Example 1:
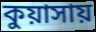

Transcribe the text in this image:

কুয়াসায়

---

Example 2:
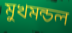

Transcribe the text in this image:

মুখমন্ডল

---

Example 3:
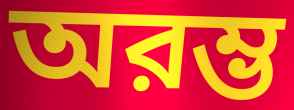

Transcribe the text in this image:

অরম্ভ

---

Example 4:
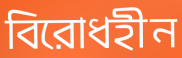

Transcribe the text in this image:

বিরোধহীন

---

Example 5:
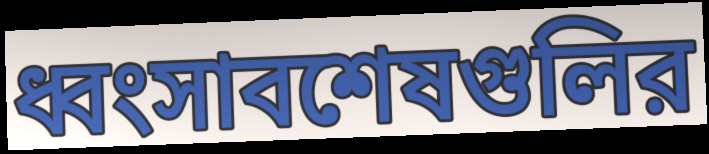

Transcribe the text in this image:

ধ্বংসাবশেষগুলির